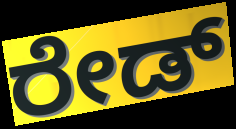
ರೇಡ್